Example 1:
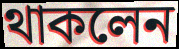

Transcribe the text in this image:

থাকলেন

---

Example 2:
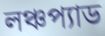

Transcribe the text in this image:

লঞ্চপ্যাড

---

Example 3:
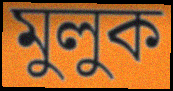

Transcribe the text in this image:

মুলুক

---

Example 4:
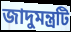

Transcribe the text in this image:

জাদুমন্ত্রটি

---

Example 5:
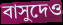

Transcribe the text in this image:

বাসুদেও